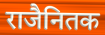
राजैनितक